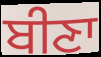
ਬੀਣਾ